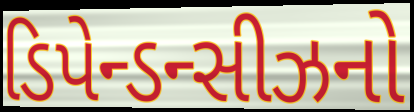
ડિપેન્ડન્સીઝનો